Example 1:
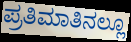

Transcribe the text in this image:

ಪ್ರತಿಮಾತಿನಲ್ಲೂ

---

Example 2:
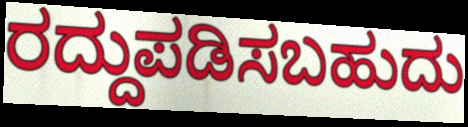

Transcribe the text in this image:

ರದ್ದುಪಡಿಸಬಹುದು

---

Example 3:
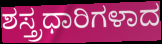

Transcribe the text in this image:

ಶಸ್ತ್ರಧಾರಿಗಳಾದ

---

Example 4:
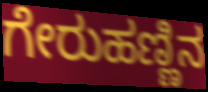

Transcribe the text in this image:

ಗೇರುಹಣ್ಣಿನ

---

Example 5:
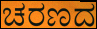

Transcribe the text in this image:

ಚರಣದ